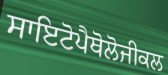
ਸਾਇਟੋਪੈਥੋਲੋਜੀਕਲ